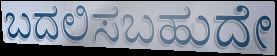
ಬದಲಿಸಬಹುದೇ